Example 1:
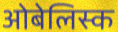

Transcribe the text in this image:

ओबेलिस्क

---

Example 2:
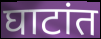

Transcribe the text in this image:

घाटांत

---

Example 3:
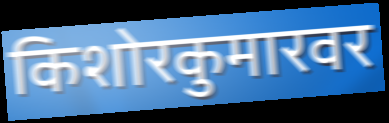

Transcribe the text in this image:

किशोरकुमारवर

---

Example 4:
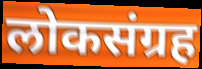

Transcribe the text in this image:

लोकसंग्रह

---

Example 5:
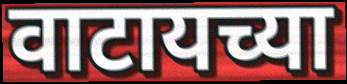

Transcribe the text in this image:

वाटायच्या